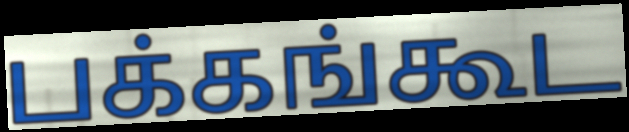
பக்கங்கூட